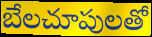
బేలచూపులతో